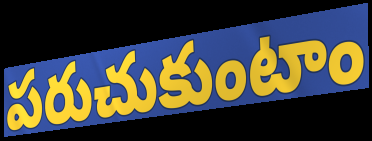
పరుచుకుంటాం